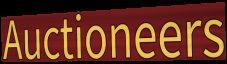
Auctioneers